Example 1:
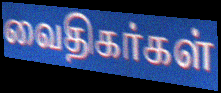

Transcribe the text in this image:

வைதிகர்கள்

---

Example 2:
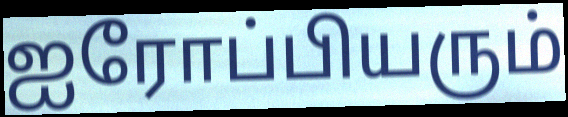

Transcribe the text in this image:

ஐரோப்பியரும்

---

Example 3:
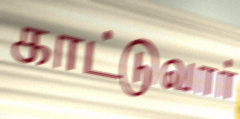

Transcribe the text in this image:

காட்டுவார்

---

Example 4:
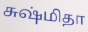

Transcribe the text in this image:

சுஷ்மிதா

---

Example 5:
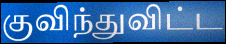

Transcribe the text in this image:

குவிந்துவிட்ட